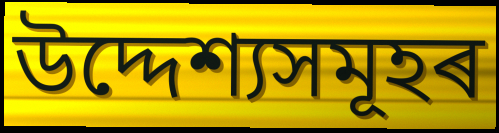
উদ্দেশ্যসমূহৰ